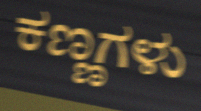
ಕಣ್ಣಗಳು